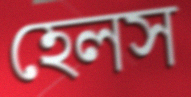
হেলস